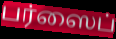
பர்ஸைப்